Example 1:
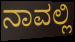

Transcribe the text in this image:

ನಾವಲ್ಲಿ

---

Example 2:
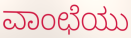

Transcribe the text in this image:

ವಾಂಛೆಯು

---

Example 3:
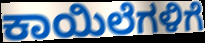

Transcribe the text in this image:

ಕಾಯಿಲೆಗಳಿಗೆ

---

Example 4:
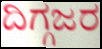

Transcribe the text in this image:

ದಿಗ್ಗಜರ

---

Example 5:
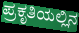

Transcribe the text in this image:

ಪ್ರಕೃತಿಯಲ್ಲಿನ